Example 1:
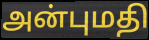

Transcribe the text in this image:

அன்புமதி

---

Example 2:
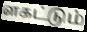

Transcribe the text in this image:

ளகட்டும்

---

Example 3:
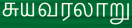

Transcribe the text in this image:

சுயவரலாறு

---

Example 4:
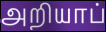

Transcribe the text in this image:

அறியாப்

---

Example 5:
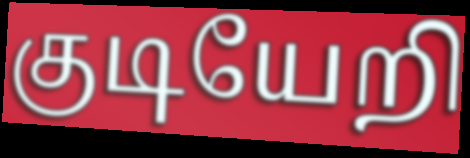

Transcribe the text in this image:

குடியேறி